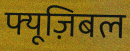
फ्यूज़िबल